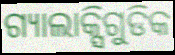
ଗ୍ୟାଲାକ୍ସିଗୁଡିକ